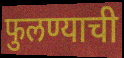
फुलण्याची